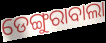
ଡେଙ୍ଗୁରାବାଲା